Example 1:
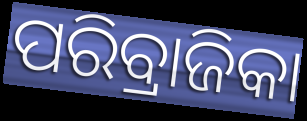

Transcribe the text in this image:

ପରିବ୍ରାଜିକା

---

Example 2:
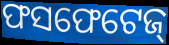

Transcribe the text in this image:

ଫସଫେଟେଜ୍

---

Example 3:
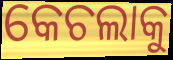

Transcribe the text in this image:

କେଚଲାକୁ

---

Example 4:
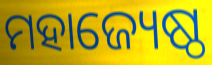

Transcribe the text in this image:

ମହାଜ୍ୟେଷ୍ଠ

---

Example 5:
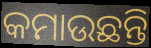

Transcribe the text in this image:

କମାଉଛନ୍ତି